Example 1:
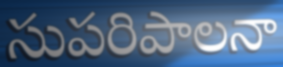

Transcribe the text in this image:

సుపరిపాలనా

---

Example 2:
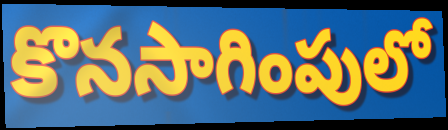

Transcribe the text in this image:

కొనసాగింపులో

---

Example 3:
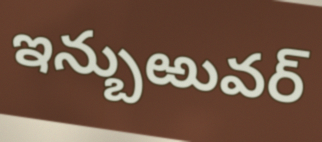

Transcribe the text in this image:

ఇన్బుఱువర్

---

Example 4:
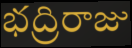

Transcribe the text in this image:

భద్రిరాజు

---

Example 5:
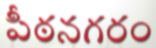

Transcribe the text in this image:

పీఠనగరం